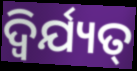
ଦ୍ୱିର୍ଯ୍ୟତ୍